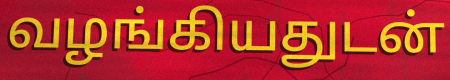
வழங்கியதுடன்